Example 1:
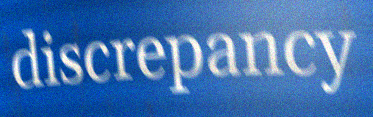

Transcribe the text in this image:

discrepancy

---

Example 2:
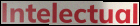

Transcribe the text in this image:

Intelectual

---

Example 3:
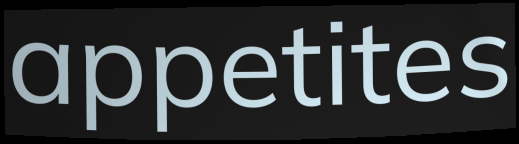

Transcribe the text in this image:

appetites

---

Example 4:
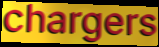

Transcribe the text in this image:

chargers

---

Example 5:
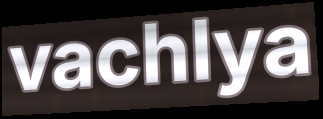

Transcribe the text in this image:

vachlya